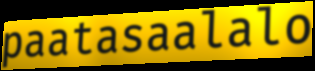
paatasaalalo